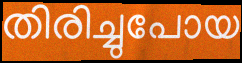
തിരിച്ചുപോയ